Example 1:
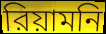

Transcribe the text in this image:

রিয়ামনি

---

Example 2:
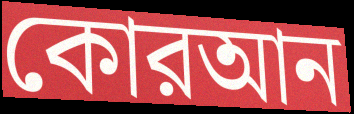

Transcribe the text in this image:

কোরআন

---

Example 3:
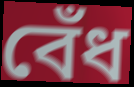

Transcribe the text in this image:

বেঁধ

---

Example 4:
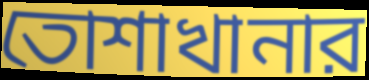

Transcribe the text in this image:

তোশাখানার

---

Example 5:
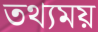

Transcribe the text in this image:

তথ্যময়